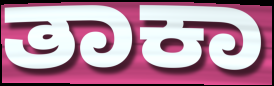
ತಾಕಾ